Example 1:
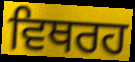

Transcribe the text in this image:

ਵਿਥਰਹ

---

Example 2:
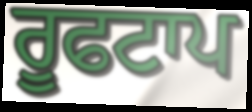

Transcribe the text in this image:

ਰੂਫਟਾਪ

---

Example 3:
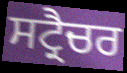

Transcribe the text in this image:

ਸਟ੍ਰੈਚਰ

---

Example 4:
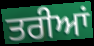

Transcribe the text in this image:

ਤਰੀਆਂ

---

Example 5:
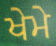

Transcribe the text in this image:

ਖੇਮੇ